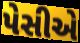
પેસીએ